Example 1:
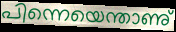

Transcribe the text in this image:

പിന്നെയെന്താണു്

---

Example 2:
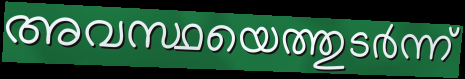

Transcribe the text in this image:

അവസ്ഥയെത്തുടർന്ന്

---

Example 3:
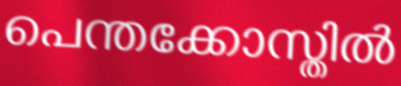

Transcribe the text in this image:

പെന്തക്കോസ്തിൽ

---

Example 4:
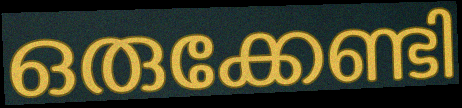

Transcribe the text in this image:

ഒരുക്കേണ്ടി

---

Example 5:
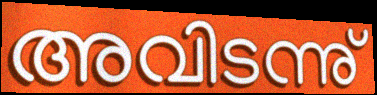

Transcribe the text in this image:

അവിടന്നു്